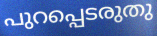
പുറപ്പെടരുതു